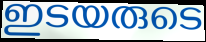
ഇടയരുടെ